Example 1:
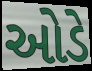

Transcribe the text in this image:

ઓડે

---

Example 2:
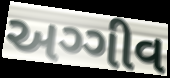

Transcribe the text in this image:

અગ્ગીવ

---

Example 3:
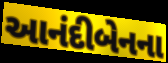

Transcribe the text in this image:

આનંદીબેનના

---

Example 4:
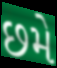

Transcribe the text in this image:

છમે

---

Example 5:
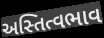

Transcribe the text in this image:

અસ્તિત્વભાવ